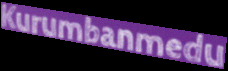
Kurumbanmedu